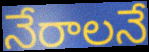
నేరాలనే